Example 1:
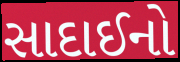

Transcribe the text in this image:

સાદાઈનો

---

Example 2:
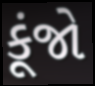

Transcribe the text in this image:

કૂંજો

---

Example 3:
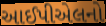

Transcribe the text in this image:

આઈપીએલનો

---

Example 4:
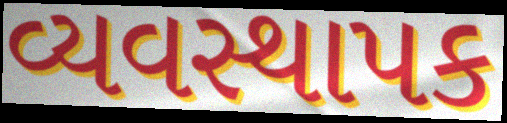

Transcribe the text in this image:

વ્યવસ્થાપક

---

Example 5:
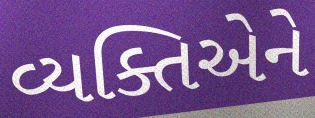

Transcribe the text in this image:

વ્યક્તિએને